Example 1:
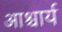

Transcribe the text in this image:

आश्चार्य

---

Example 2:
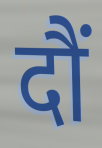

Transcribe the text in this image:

दौं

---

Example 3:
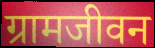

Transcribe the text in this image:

ग्रामजीवन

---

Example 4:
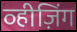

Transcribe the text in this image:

व्हीज़िंग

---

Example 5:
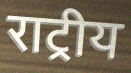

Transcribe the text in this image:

राट्रीय